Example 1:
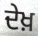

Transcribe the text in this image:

ਦੇਖ਼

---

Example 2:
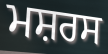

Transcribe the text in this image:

ਮਸ਼ਰਸ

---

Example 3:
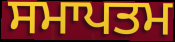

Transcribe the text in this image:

ਸਮਾਪਤਮ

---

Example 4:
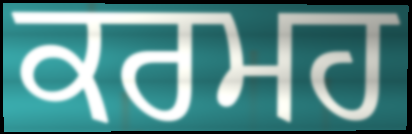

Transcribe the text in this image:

ਕਰਮਹ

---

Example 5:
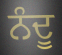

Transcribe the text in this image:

ਨੰਦੂ